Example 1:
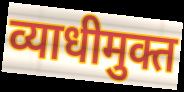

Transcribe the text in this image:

व्याधीमुक्त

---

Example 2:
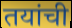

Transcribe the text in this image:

तयांची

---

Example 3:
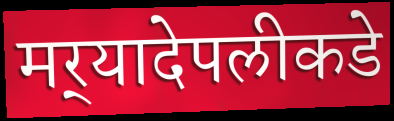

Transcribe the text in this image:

मर्यादेपलीकडे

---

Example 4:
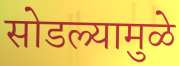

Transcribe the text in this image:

सोडल्यामुळे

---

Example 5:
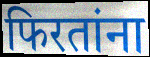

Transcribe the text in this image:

फिरतांना